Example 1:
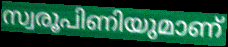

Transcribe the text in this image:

സ്വരൂപിണിയുമാണ്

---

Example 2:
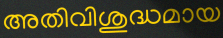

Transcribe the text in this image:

അതിവിശുദ്ധമായ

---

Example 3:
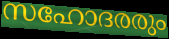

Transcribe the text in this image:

സഹോദരരും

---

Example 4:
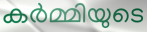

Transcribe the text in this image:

കർമ്മിയുടെ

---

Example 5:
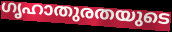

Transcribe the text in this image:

ഗൃഹാതുരതയുടെ